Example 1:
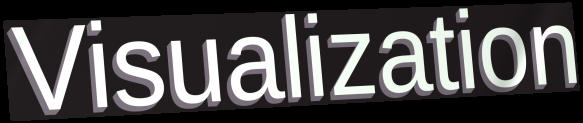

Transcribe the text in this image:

Visualization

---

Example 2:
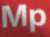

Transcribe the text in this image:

Mp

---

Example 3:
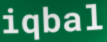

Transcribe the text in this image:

iqbal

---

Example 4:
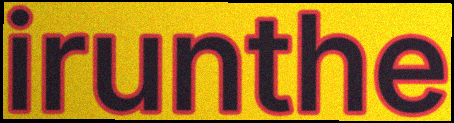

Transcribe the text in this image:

irunthe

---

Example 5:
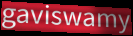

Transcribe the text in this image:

gaviswamy